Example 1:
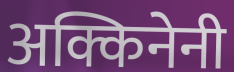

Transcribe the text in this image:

अक्किनेनी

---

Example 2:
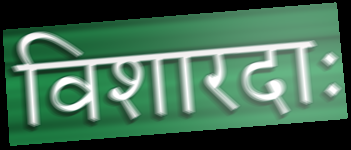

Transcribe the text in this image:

विशारदाः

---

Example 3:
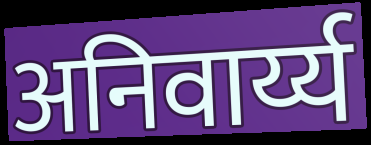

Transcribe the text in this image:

अनिवार्य्य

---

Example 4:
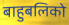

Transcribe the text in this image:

बाहुबलिको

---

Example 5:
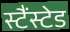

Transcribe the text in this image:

स्टैंस्टेड